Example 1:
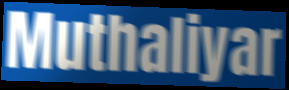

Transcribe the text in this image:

Muthaliyar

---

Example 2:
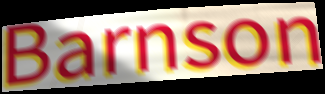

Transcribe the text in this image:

Barnson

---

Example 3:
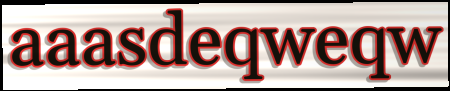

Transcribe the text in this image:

aaasdeqweqw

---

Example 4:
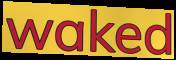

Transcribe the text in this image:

waked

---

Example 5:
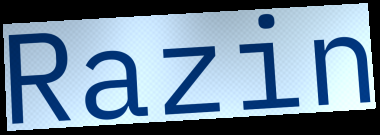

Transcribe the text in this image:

Razin